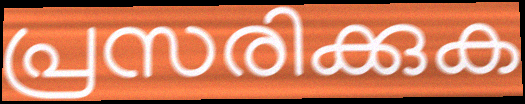
പ്രസരിക്കുക